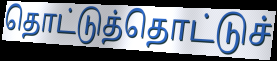
தொட்டுத்தொட்டுச்